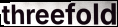
threefold